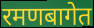
रमणबागेत